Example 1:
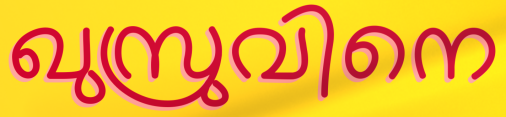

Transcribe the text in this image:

ഖുസ്രുവിനെ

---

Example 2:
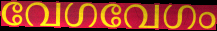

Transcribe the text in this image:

വേഗവേഗം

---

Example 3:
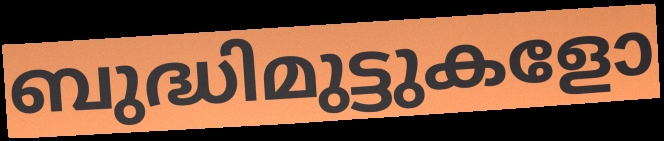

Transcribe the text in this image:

ബുദ്ധിമുട്ടുകളോ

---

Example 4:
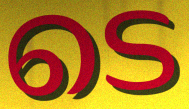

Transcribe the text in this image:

ടെ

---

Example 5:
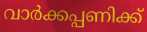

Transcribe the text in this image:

വാർക്കപ്പണിക്ക്